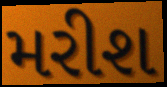
મરીશ